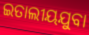
ଇତାଲୀୟଯୁବା